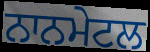
ਨਾਨਮੇਟਲ